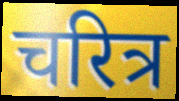
चरित्र